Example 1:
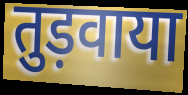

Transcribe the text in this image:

तुड़वाया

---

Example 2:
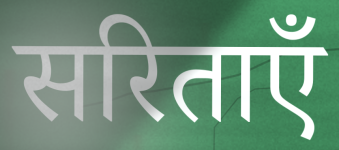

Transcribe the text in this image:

सरिताएँ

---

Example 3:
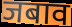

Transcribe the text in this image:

जबाव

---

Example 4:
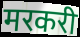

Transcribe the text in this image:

मरकरी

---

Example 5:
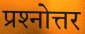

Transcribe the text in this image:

प्रश्‍नोत्तर